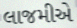
લાજમીએ